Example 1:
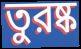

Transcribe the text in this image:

তুরষ্ক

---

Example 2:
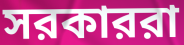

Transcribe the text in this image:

সরকাররা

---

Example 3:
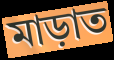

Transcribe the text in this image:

মাড়াত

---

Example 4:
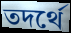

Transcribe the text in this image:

তদর্থে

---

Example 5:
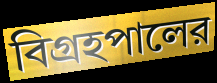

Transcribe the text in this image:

বিগ্রহপালের